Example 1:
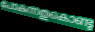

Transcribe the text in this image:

പോകുന്നതുകൊണ്ടു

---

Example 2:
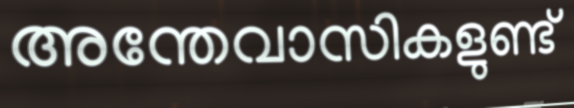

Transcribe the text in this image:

അന്തേവാസികളുണ്ട്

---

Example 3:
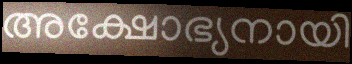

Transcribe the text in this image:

അക്ഷോഭ്യനായി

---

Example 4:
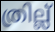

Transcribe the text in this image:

ത്രില്ല്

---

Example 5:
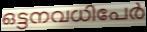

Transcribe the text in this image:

ഒട്ടനവധിപേർ